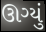
ઊગ્યું